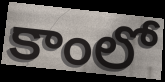
కాంలో